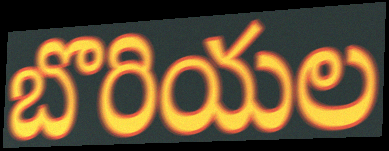
బొరియల